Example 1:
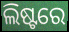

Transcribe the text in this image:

ଲିଷ୍ଟରେ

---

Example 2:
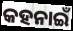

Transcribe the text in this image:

କହନାଇଁ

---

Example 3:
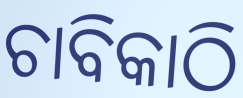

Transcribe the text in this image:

ଚାବିକାଠି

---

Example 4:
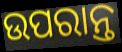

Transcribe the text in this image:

ଉପରାନ୍ତ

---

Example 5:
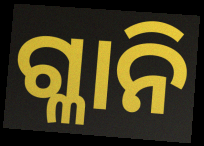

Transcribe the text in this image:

ଗ୍ଳାନି